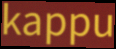
kappu